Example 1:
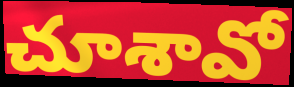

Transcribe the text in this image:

చూశావో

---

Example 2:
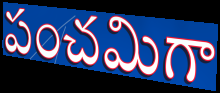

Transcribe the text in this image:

పంచమిగా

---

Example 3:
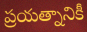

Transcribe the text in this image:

ప్రయత్నానికీ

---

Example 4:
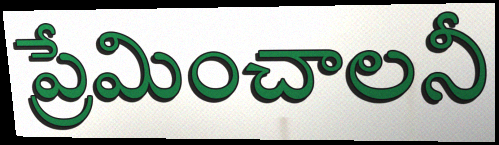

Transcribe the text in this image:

ప్రేమించాలనీ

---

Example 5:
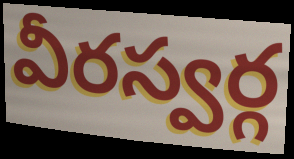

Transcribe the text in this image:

వీరస్వర్గ